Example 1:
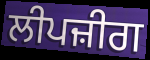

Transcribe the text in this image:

ਲੀਪਜ਼ੀਗ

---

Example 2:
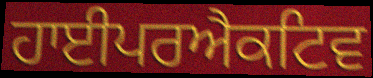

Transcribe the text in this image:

ਹਾਈਪਰਐਕਟਿਵ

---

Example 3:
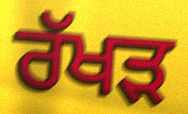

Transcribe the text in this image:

ਰੱਖੜ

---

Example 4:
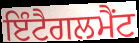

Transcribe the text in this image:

ਇੰਟੈਗਲਮੈਂਟ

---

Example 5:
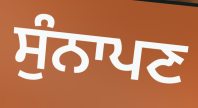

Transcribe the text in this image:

ਸੁੰਨਾਪਣ